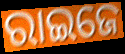
ରାଇଜେ